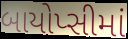
બાયોપ્સીમાં